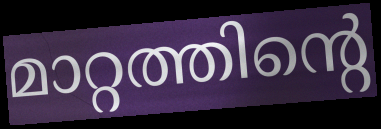
മാറ്റത്തിന്റെ